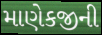
માણેકજીની